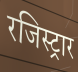
रजिस्ट्रार